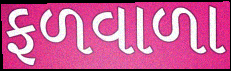
ફળવાળા